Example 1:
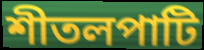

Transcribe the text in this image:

শীতলপাটি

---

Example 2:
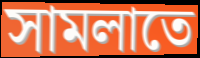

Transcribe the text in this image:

সামলাতে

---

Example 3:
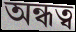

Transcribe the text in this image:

অন্ধত্ব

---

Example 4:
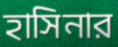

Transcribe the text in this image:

হাসিনার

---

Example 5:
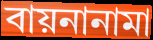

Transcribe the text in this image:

বায়নানামা